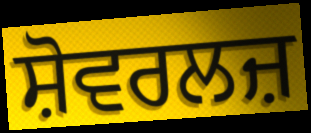
ਸ਼ੋਵਰਲਜ਼